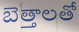
బెత్తాలతో